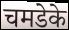
चमडेके